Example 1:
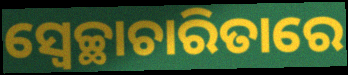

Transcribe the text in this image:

ସ୍ୱେଚ୍ଛାଚାରିତାରେ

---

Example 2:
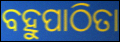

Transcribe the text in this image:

ବହୁପାଠିତା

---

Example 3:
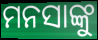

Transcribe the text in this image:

ମନସାଙ୍କୁ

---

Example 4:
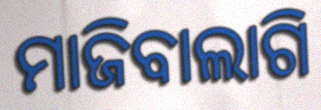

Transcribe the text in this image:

ମାଜିବାଲାଗି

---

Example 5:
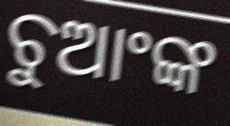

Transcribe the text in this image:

ଚୁଆଂଙ୍କ